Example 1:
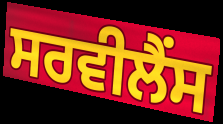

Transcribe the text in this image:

ਸਰਵੀਲੈਂਸ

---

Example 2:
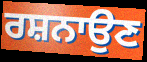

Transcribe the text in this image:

ਰਸ਼ਨਾਉਣ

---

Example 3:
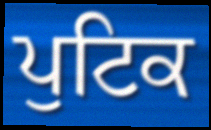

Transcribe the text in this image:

ਪੁਟਿਕ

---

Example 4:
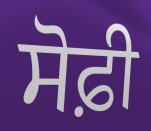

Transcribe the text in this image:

ਸੋਫ਼ੀ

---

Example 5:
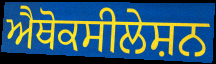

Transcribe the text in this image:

ਐਥੋਕਸੀਲੇਸ਼ਨ